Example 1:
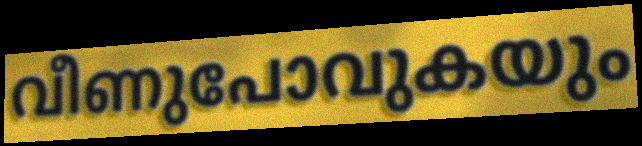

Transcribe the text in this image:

വീണുപോവുകയും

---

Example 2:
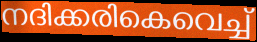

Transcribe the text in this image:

നദിക്കരികെവെച്ച്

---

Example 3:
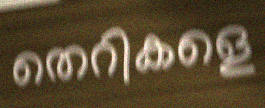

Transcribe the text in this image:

തെറികളെ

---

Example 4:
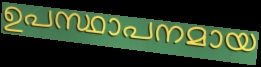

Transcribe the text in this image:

ഉപസ്ഥാപനമായ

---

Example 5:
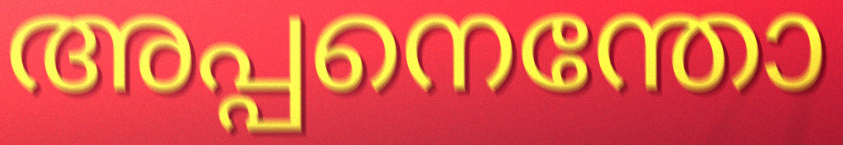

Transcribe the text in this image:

അപ്പനെന്തോ